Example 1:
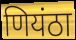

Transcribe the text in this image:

णियंठा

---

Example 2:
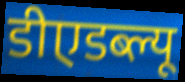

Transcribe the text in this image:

डीएडब्ल्यू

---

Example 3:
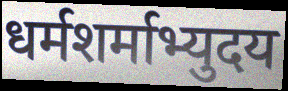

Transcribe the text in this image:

धर्मशर्माभ्युदय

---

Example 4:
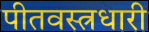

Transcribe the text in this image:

पीतवस्त्रधारी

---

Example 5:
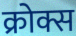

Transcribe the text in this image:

क्रोक्स